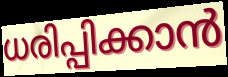
ധരിപ്പിക്കാൻ